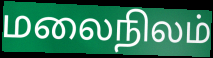
மலைநிலம்